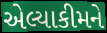
એલ્યાકીમને